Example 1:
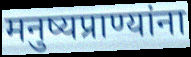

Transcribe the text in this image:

मनुष्यप्राण्यांना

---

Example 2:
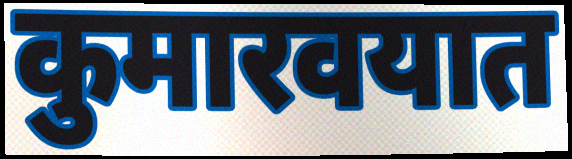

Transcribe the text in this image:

कुमारवयात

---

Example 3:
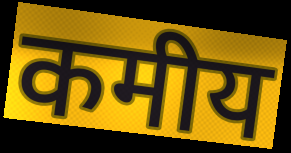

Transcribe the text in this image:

कमीय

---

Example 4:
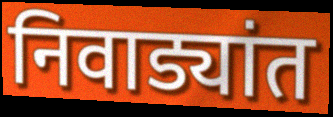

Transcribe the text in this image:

निवाड्यांत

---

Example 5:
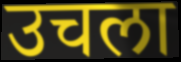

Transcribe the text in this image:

उचला